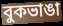
বুকভাঙা